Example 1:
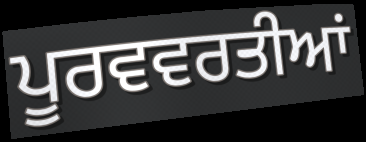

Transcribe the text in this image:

ਪੂਰਵਵਰਤੀਆਂ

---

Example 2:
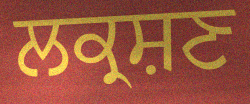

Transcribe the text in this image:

ਲਕ੍ਰਸ਼ਣ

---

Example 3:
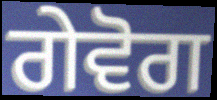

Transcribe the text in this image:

ਗੇਵੋਗ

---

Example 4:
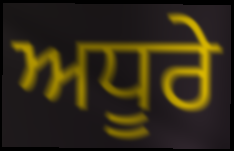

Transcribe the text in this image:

ਅਧੂਰੇ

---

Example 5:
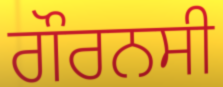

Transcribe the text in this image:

ਗੌਰਨਸੀ